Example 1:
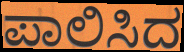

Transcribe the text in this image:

ಪಾಲಿಸಿದ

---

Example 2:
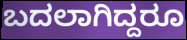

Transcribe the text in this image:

ಬದಲಾಗಿದ್ದರೂ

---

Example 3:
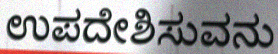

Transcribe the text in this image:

ಉಪದೇಶಿಸುವನು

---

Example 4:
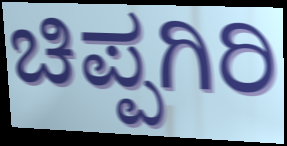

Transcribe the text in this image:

ಚಿಪ್ಪಗಿರಿ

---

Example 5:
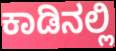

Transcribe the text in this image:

ಕಾಡಿನಲ್ಲಿ